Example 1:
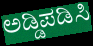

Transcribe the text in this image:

ಅಡ್ಡಿಪಡಿಸಿ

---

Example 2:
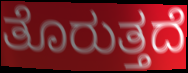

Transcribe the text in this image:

ತೊರುತ್ತದೆ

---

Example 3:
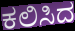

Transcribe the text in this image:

ಕಲಿಸಿದ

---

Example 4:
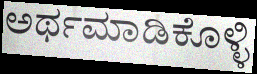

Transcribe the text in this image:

ಅರ್ಥಮಾಡಿಕೊಳ್ಳಿ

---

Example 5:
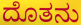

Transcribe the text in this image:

ದೊತನು